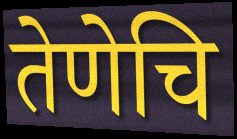
तेणेचि